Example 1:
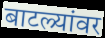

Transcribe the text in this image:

बाटल्यांवर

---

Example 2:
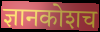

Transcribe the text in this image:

ज्ञानकोशच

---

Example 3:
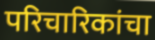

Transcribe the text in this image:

परिचारिकांचा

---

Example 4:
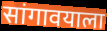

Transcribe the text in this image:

सांगावयाला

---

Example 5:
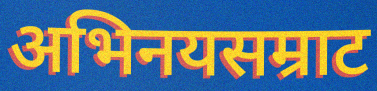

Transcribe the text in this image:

अभिनयसम्राट